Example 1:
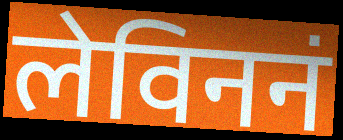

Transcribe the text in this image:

लेविननं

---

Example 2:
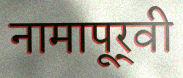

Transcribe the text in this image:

नामापूर्वी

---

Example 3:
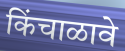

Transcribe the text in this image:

किंचाळावे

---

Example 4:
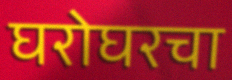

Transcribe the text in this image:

घरोघरचा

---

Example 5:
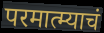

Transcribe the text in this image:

परमात्म्याचं